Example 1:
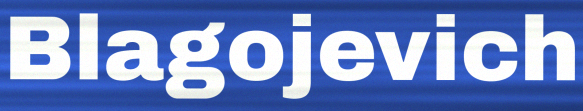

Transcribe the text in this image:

Blagojevich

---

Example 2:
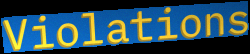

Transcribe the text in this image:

Violations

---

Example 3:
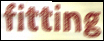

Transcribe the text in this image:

fitting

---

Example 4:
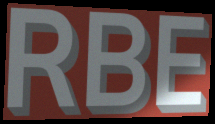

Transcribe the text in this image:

RBE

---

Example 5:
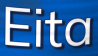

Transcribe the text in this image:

Eita